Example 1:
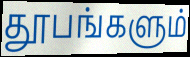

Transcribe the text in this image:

தூபங்களும்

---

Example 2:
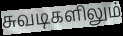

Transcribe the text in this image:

சுவடிகளிலும்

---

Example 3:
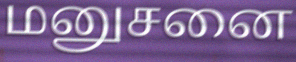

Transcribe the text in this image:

மனுசனை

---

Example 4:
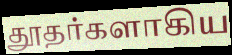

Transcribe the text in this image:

தூதர்களாகிய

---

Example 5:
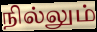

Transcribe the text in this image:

நில்லும்